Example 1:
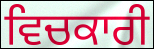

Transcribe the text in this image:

ਵਿਚਕਾਰੀ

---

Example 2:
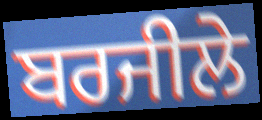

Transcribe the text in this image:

ਬਰਜੀਲੇ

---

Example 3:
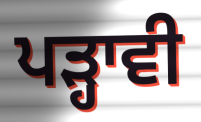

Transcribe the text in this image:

ਪੜ੍ਹਾਵੀ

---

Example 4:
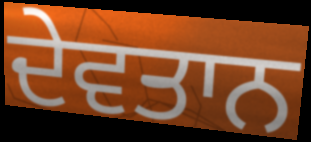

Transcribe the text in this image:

ਦੇਵਤਾਨ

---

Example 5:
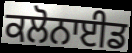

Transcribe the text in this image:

ਕਲੋਨਾਈਡ